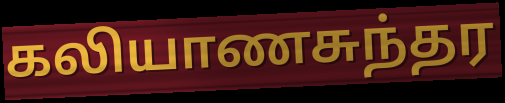
கலியாணசுந்தர